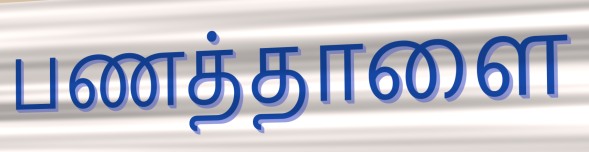
பணத்தாளை